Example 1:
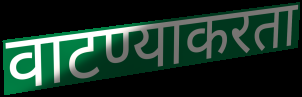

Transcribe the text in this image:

वाटण्याकरता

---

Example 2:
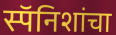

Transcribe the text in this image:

स्पॅनिशांचा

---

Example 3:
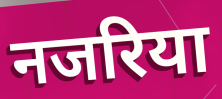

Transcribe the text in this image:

नजरिया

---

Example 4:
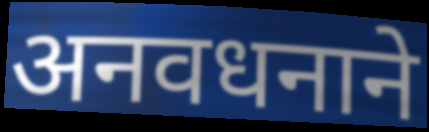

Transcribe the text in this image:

अनवधनाने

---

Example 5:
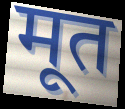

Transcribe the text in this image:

मूत